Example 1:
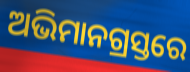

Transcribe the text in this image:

ଅଭିମାନଗ୍ରସ୍ତରେ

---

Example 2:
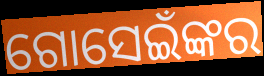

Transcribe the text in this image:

ଗୋସେଇଁଙ୍କର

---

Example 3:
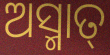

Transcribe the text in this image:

ଅସ୍ମାତ୍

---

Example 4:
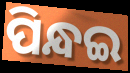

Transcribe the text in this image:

ପିନ୍ଧଇ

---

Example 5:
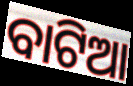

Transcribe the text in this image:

ବାଟିଆ